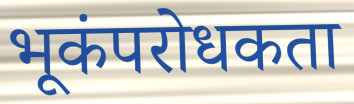
भूकंपरोधकता